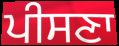
ਪੀਸਣਾ